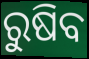
ରୁଷିବ